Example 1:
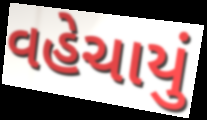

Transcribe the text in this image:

વહેચાયું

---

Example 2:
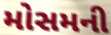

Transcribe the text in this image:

મોસમની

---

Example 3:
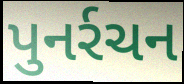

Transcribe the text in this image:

પુનર્રચન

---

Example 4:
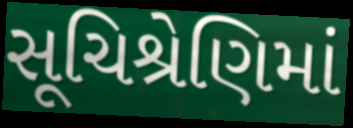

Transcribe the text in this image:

સૂચિશ્રેણિમાં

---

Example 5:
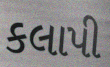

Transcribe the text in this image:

કલાપી